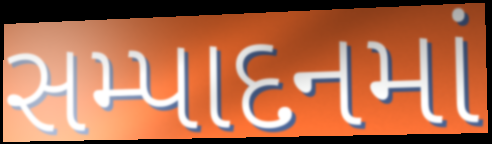
સમ્પાદનમાં